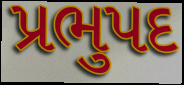
પ્રભુપદ